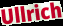
Ullrich